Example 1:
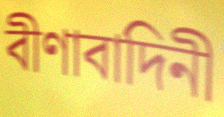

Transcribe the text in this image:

বীণাবাদিনী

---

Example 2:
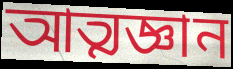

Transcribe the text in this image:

আত্মজ্ঞান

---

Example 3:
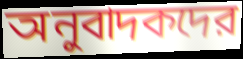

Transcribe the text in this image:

অনুবাদকদের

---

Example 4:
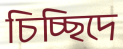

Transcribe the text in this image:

চিচ্ছিদে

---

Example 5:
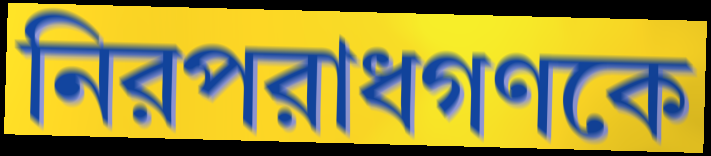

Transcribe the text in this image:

নিরপরাধগণকে